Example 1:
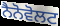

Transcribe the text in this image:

ਨੈਨੋਵੋਲਟ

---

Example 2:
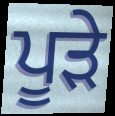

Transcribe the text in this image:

ਪੂੜੇ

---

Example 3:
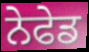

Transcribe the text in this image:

ਨੇਫੇਡ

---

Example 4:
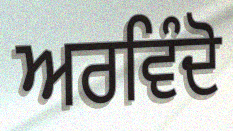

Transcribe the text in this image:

ਅਰਵਿੰਦੋ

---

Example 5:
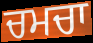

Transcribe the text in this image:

ਚਮਚਾ